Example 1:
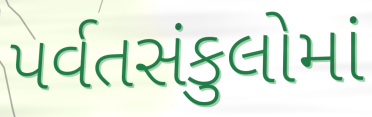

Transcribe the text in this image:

પર્વતસંકુલોમાં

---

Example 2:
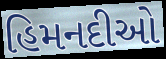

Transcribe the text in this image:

હિમનદીઓ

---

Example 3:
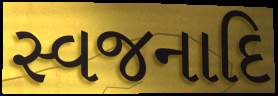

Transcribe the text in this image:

સ્વજનાદિ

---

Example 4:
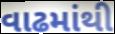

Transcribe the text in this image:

વાઢમાંથી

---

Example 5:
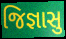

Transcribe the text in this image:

જિજ્ઞાસુ